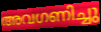
അവഗണിച്ചു